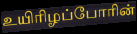
உயிரிழப்போரின்